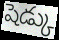
షెడ్కు